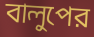
বালুপের